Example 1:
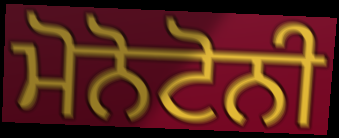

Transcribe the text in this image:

ਮੋਨੋਟੋਨੀ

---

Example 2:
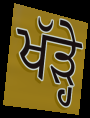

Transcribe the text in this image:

ਖੱੜ੍ਹੇ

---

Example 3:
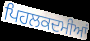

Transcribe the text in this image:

ਪਿਹਲਕਦਮੀਆਂ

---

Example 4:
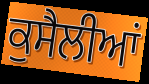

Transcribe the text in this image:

ਕੁਸੈਲੀਆਂ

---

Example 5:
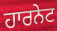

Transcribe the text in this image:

ਹਾਰਨੇਟ